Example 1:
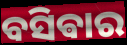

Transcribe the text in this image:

ବସିଵାର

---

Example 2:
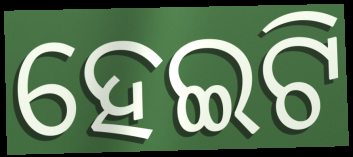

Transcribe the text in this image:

ହେଇଟି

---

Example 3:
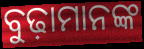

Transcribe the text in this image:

ବୁଢ଼ାମାନଙ୍କ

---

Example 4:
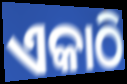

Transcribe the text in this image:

ଏକାଠି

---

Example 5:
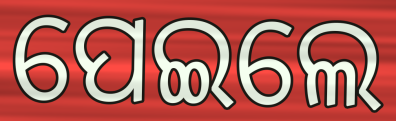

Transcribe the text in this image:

ପେଇଲେ